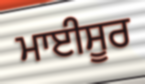
ਮਾਈਸੂਰ